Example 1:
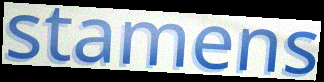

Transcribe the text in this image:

stamens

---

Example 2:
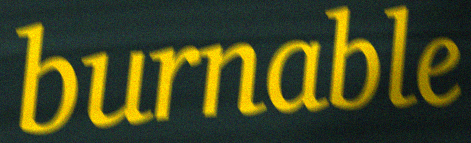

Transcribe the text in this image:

burnable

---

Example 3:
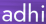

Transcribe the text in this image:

adhi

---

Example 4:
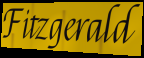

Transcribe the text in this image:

Fitzgerald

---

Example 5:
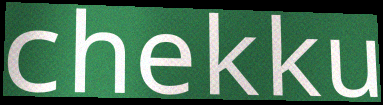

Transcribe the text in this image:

chekku